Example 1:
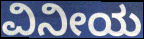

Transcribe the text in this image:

ವಿನೀಯ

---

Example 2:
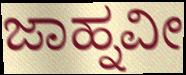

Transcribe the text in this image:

ಜಾಹ್ನವೀ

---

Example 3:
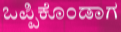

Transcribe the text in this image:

ಒಪ್ಪಿಕೊಂಡಾಗ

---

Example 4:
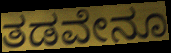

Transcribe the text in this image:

ತಡವೇನೂ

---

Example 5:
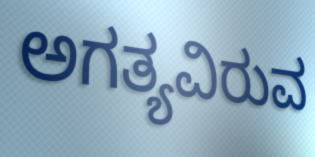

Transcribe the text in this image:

ಅಗತ್ಯವಿರುವ